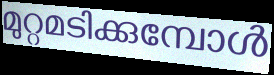
മുറ്റമടിക്കുമ്പോൾ